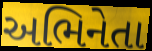
અભિનેતા